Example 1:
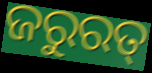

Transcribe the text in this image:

ଜରୁରତ୍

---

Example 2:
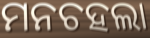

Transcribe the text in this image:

ମନଚହଲା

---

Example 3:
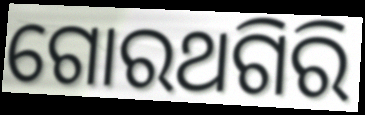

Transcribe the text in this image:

ଗୋରଥଗିରି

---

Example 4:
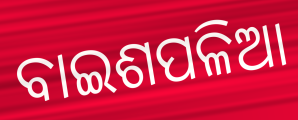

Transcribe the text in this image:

ବାଇଶପଳିଆ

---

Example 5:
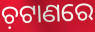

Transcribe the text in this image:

ଚ଼ଟାଣରେ